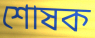
শোষক